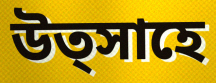
উত্সাহে